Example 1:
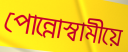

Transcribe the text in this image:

পোন্নোস্বামীয়ে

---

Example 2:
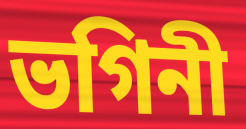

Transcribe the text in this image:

ভগিনী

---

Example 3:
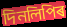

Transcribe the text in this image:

দিনলিপিৰ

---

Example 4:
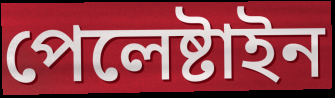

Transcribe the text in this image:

পেলেষ্টাইন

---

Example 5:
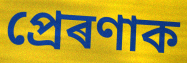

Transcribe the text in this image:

প্ৰেৰণাক